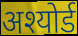
अश्योर्ड